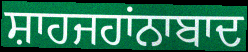
ਸ਼ਾਹਜਹਾਂਨਾਬਾਦ